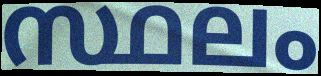
സ്ഥലം